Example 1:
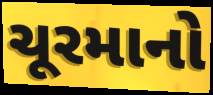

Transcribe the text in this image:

ચૂરમાનો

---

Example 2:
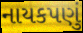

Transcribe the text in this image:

નાયકપણું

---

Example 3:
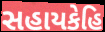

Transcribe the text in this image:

સહાયકેહિ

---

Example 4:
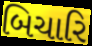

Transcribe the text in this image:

બિચારિ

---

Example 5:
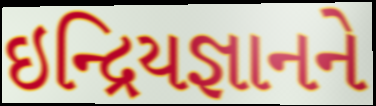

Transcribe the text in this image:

ઇન્દ્રિયજ્ઞાનને